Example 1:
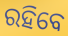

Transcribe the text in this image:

ରହିବେ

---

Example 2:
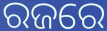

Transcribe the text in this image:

ରଜରେ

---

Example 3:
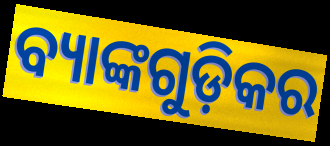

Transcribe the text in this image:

ବ୍ୟାଙ୍କଗୁଡ଼ିକର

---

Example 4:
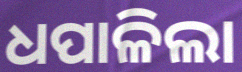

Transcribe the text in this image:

ଧପାଳିଲା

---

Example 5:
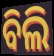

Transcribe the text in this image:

ବିଲି